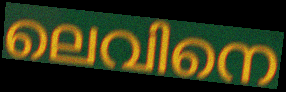
ലെവിനെ